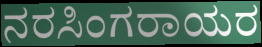
ನರಸಿಂಗರಾಯರ